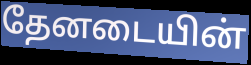
தேனடையின்